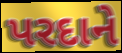
પરદાને